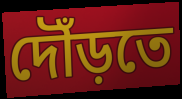
দৌঁড়তে